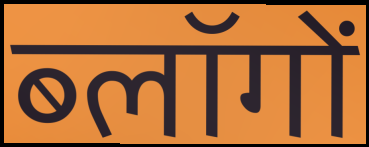
ब्‍लॉगों